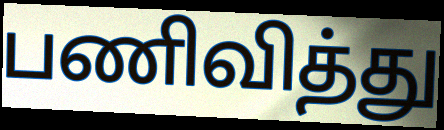
பணிவித்து